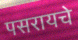
पसरायचे